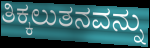
ತಿಕ್ಕಲುತನವನ್ನು